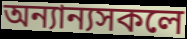
অন্যান্যসকলে